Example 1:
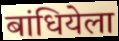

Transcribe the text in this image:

बांधियेला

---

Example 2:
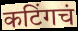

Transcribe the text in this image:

कटिंगचं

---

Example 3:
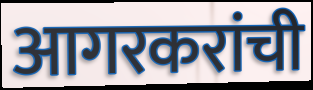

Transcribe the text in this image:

आगरकरांची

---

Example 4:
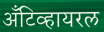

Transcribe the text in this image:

अँटिव्हायरल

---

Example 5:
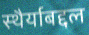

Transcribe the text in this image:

स्थैर्याबद्दल